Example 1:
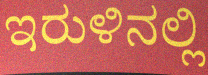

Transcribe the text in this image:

ಇರುಳಿನಲ್ಲಿ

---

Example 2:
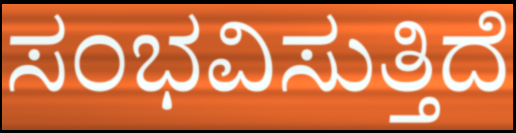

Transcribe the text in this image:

ಸಂಭವಿಸುತ್ತಿದೆ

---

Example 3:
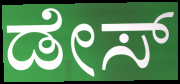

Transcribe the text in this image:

ಡೇಸ್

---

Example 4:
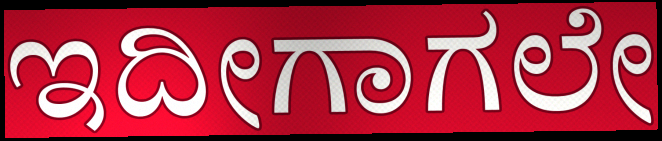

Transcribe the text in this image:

ಇದೀಗಾಗಲೇ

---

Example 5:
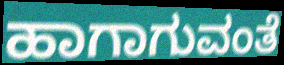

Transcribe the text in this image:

ಹಾಗಾಗುವಂತೆ